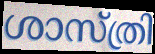
ശാസ്ത്രി